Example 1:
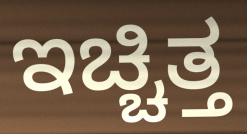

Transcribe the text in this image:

ಇಚ್ಚಿತ್ತ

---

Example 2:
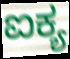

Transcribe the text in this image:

ಐಕ್ಯ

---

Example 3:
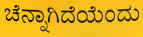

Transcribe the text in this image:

ಚೆನ್ನಾಗಿದೆಯೆಂದು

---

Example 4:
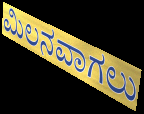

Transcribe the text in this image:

ಮಿಲನವಾಗಲು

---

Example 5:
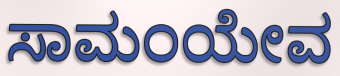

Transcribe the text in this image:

ಸಾಮಂಯೇವ